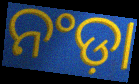
ନଂଡ଼ା